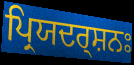
ਪ੍ਰਿਯਦਰ੍ਸ਼ਨਃ